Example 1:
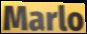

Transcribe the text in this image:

Marlo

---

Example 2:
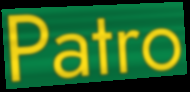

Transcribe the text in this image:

Patro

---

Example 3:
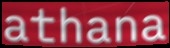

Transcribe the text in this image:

athana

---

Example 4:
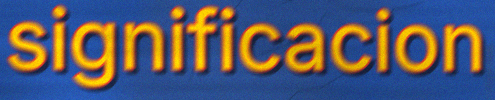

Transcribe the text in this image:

significacion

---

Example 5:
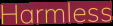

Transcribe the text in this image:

Harmless